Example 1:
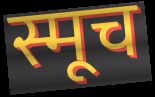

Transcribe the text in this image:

स्मूच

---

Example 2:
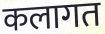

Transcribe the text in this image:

कलागत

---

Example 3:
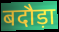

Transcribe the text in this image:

बदौड़ा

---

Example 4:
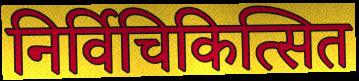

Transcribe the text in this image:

निर्विचिकित्सित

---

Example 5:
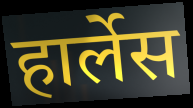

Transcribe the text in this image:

हार्लेस